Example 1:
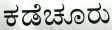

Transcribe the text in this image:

ಕಡೆಚೂರು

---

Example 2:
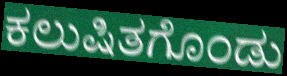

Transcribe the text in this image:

ಕಲುಷಿತಗೊಂಡು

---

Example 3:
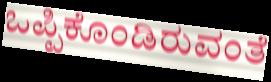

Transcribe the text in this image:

ಒಪ್ಪಿಕೊಂಡಿರುವಂತೆ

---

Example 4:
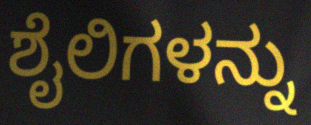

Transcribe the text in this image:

ಶೈಲಿಗಳನ್ನು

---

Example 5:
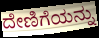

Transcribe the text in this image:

ದೇಣಿಗೆಯನ್ನು